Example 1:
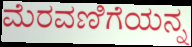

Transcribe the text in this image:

ಮೆರವಣಿಗೆಯನ್ನ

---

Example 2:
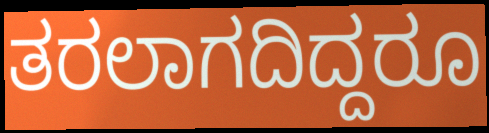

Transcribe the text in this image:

ತರಲಾಗದಿದ್ದರೂ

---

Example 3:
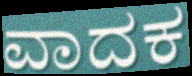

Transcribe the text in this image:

ವಾದಕ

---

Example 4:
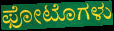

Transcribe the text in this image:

ಫೋಟೊಗಳು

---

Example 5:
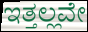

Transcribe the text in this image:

ಇತ್ತಲ್ಲವೇ